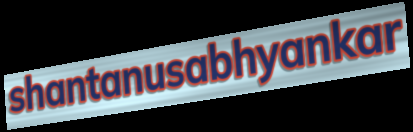
shantanusabhyankar